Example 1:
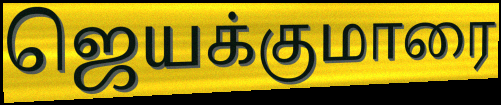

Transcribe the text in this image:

ஜெயக்குமாரை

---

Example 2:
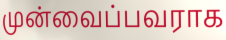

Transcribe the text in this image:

முன்வைப்பவராக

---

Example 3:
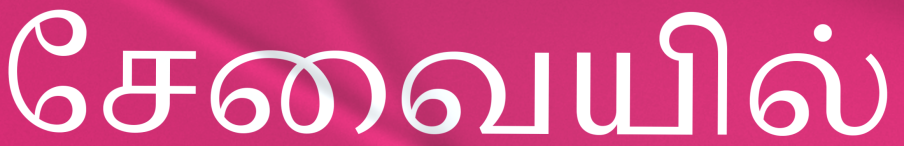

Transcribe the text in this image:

சேவையில்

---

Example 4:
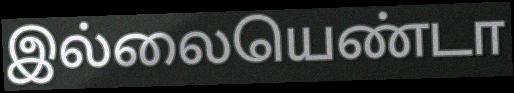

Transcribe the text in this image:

இல்லையெண்டா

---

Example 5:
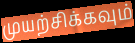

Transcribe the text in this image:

முயற்சிக்கவும்